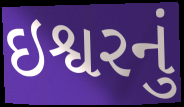
ઇશ્વરનું